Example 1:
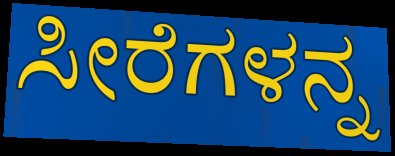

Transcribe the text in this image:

ಸೀರೆಗಳನ್ನ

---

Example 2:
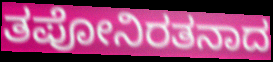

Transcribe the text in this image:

ತಪೋನಿರತನಾದ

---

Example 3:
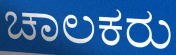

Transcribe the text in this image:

ಚಾಲಕರು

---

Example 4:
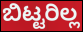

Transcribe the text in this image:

ಬಿಟ್ಟರಿಲ್ಲ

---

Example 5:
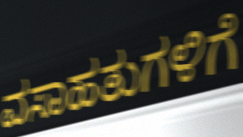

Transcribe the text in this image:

ವಸಾಹತುಗಳಿಗೆ